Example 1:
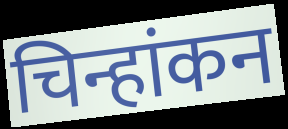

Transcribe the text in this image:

चिन्हांकन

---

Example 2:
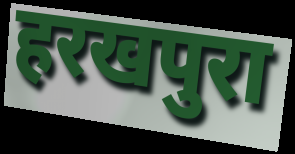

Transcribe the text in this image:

हरखपुरा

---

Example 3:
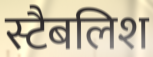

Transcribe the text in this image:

स्टैबलिश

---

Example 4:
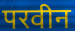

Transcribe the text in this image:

परवीन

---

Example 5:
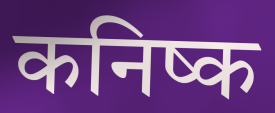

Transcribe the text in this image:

कनिष्क